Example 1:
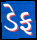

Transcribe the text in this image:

ડેફ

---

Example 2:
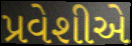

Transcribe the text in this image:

પ્રવેશીએ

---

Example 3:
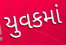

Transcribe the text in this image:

યુવકમાં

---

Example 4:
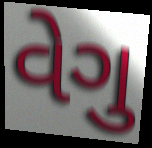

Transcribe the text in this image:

વેગુ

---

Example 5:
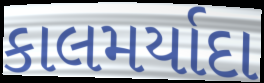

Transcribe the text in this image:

કાલમર્યાદા